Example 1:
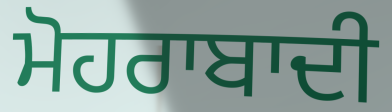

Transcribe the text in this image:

ਮੋਹਰਾਬਾਦੀ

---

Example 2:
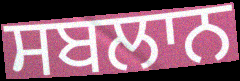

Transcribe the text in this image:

ਸਬਲਾਨ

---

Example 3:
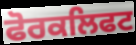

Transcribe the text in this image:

ਫੋਰਕਲਿਫਟ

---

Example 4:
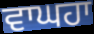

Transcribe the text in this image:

ਵਾਘਹਾ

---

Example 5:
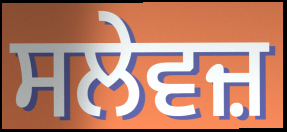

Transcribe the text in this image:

ਸਲੇਵਜ਼